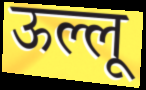
ऊल्लू